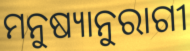
ମନୁଷ୍ୟାନୁରାଗୀ